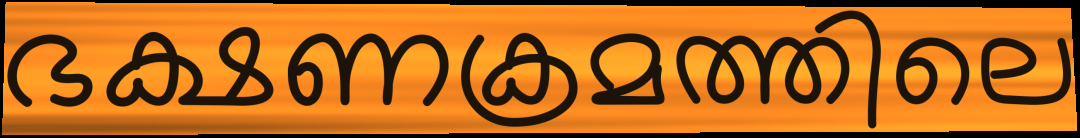
ഭക്ഷണക്രമത്തിലെ